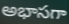
అభాసగా